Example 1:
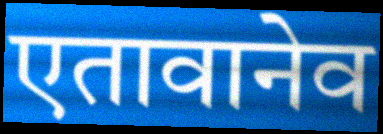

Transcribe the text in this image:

एतावानेव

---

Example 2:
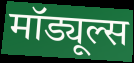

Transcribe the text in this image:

मॉड्यूल्स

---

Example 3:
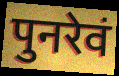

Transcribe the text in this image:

पुनरेवं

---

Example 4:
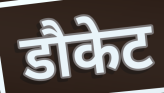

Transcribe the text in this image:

डौकेट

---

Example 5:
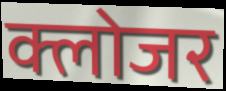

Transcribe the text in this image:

क्लोजर